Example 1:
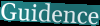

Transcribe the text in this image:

Guidence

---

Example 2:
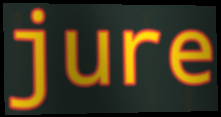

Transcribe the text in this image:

jure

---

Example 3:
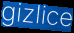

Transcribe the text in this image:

gizlice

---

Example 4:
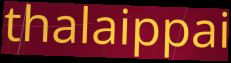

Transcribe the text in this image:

thalaippai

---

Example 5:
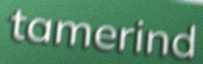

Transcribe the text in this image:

tamerind